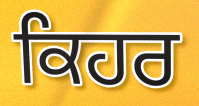
ਕਿਹਰ